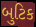
બુટિક